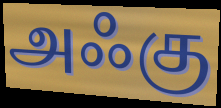
அஃகு